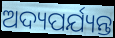
ଅଦ୍ୟପର୍ଯ୍ୟନ୍ତ